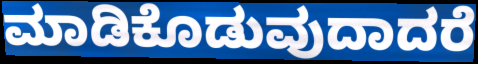
ಮಾಡಿಕೊಡುವುದಾದರೆ